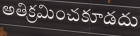
అతిక్రమించకూడదు